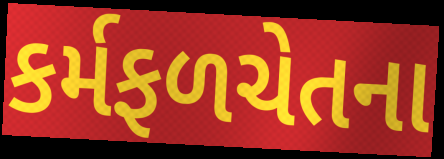
કર્મફળચેતના